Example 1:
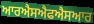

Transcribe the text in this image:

ਆਰਐਸਐਫਐਸਆਰ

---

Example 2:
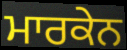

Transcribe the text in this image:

ਮਾਰਕੇਨ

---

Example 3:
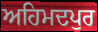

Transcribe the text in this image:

ਅਹਿਮਦਪੁਰ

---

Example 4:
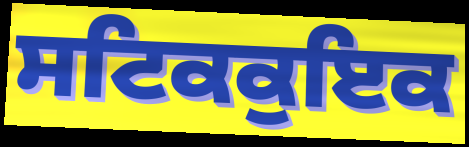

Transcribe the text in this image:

ਸਟਿਕਕੁਇਕ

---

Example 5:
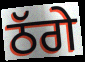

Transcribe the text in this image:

ਠੱਗੇ